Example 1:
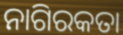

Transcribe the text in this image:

ନାଗିରକତା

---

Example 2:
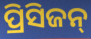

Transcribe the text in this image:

ପ୍ରିସିଜନ୍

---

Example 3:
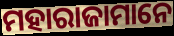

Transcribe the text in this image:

ମହାରାଜାମାନେ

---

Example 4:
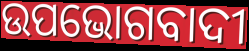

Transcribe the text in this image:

ଉପଭୋଗବାଦୀ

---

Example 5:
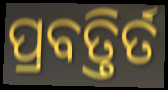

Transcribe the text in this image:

ପ୍ରବତ୍ତିର୍ତ